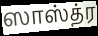
ஸாஸ்த்ர